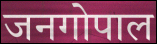
जनगोपाल